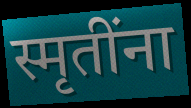
स्मृतींना